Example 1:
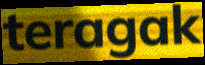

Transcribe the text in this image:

teragak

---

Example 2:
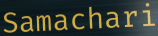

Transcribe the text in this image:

Samachari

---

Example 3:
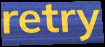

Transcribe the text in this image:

retry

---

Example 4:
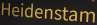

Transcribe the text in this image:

Heidenstam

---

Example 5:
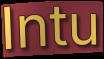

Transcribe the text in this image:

Intu